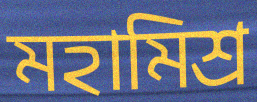
মহামিশ্র